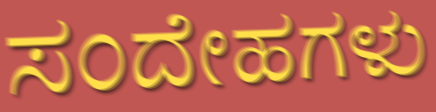
ಸಂದೇಹಗಳು